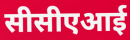
सीसीएआई